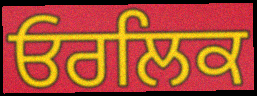
ਓਰਲਿਕ